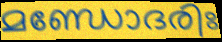
മണ്ഡോദരിഃ